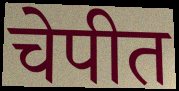
चेपीत